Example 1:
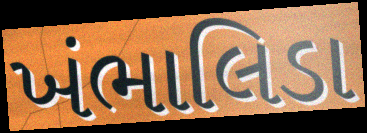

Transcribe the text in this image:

ખંભાલિડા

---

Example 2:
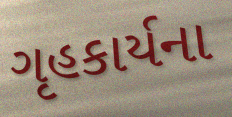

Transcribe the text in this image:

ગૃહકાર્યના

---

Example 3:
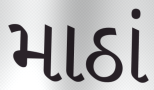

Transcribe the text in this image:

માઠાં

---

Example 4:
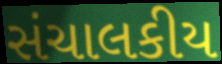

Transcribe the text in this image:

સંચાલકીય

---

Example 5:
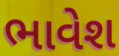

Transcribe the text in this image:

ભાવેશ